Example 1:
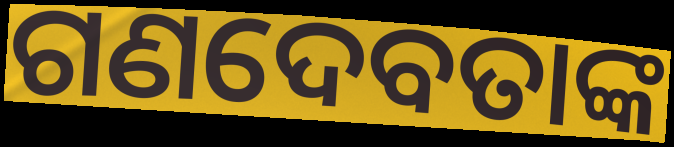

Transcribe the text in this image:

ଗଣଦେବତାଙ୍କ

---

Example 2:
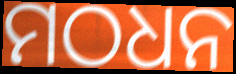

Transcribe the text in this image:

ମଠଧନ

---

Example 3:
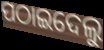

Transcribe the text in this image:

ପଠାଇଦେଲୁ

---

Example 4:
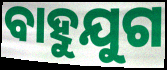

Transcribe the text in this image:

ବାହୁଯୁଗ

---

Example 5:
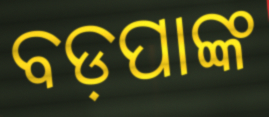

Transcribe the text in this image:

ବଡ଼ପାଙ୍କ